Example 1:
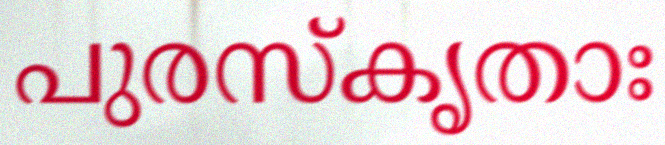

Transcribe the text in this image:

പുരസ്കൃതാഃ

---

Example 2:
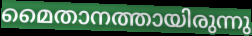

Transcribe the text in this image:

മൈതാനത്തായിരുന്നു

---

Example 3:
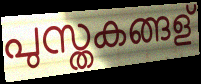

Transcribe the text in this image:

പുസ്തകങ്ങള്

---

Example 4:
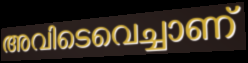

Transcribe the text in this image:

അവിടെവെച്ചാണ്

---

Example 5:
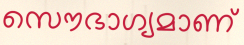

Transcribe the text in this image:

സൌഭാഗ്യമാണ്